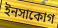
ইনসাকোগ